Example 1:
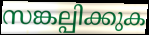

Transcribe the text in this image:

സങ്കല്പിക്കുക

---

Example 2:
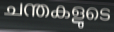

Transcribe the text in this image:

ചന്തകളുടെ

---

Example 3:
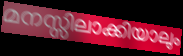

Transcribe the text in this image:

മനസ്സിലാക്കിയാലും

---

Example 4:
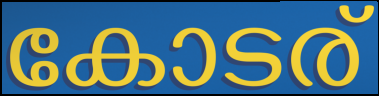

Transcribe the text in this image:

കോടര്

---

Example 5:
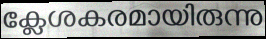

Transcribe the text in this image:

ക്ലേശകരമായിരുന്നു